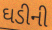
ઘડીની